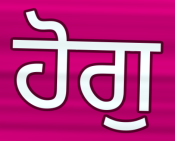
ਹੋਗੁ